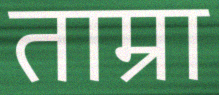
ताम्रा